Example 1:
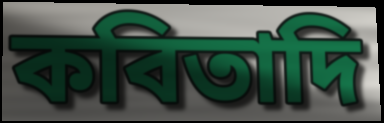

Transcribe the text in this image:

কবিতাদি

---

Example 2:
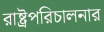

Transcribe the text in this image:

রাষ্ট্রপরিচালনার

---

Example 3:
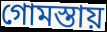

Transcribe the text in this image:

গোমস্তায়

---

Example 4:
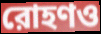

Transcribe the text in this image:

রোহণও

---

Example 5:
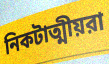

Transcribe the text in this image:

নিকটাত্মীয়রা